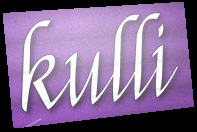
kulli